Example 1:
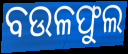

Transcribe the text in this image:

ବଉଳଫୁଲ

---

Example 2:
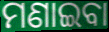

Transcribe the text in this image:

ମଣାଇବା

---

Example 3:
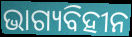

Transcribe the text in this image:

ଭାଗ୍ୟବିହୀନ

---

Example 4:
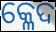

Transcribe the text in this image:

କ୍ଳେଦ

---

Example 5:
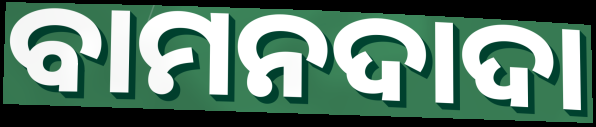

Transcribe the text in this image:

ବାମନଦାଦା